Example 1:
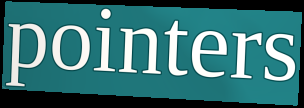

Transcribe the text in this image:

pointers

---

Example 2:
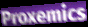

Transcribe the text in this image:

Proxemics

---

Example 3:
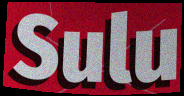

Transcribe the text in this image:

Sulu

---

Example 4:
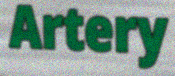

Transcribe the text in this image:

Artery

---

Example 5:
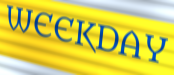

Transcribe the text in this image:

WEEKDAY